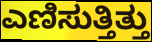
ಎಣಿಸುತ್ತಿತ್ತು